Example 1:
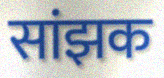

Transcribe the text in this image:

सांझक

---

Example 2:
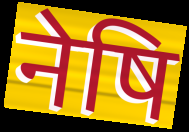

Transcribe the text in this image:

नेषि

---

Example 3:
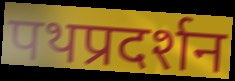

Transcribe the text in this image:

पथप्रदर्शन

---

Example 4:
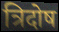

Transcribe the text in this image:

त्रिदोष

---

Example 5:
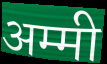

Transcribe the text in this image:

अम्मी